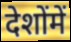
देशोंमें